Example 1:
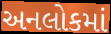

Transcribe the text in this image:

અનલોકમાં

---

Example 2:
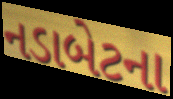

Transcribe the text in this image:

નડાબેટના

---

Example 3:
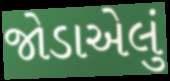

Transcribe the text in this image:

જોડાએલું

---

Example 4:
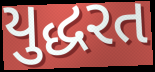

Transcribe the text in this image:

યુદ્ધરત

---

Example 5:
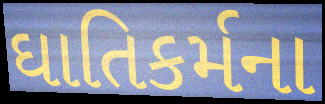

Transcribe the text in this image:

ઘાતિકર્મના